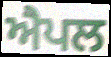
ਐਪਲ